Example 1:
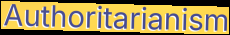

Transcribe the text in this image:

Authoritarianism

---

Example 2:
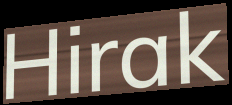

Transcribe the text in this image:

Hirak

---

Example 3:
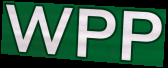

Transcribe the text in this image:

WPP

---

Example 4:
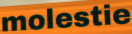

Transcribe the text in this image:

molestie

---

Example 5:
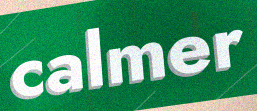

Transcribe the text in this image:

calmer